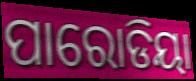
ପାରୋଡିୟା